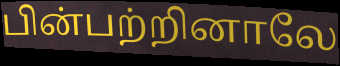
பின்பற்றினாலே